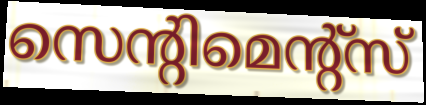
സെന്റിമെന്റ്സ്